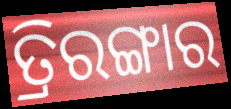
ତ୍ରିରଙ୍ଗାର